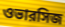
ওভারসিজ